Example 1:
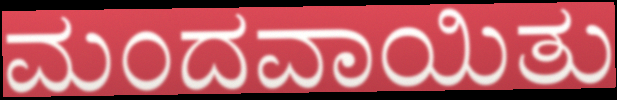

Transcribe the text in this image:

ಮಂದವಾಯಿತು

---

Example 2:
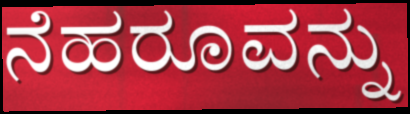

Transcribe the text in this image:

ನೆಹರೂವನ್ನು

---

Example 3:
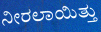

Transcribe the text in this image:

ನೀರಲಾಯಿತ್ತು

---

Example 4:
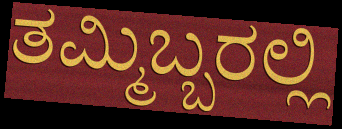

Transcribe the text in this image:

ತಮ್ಮಿಬ್ಬರಲ್ಲಿ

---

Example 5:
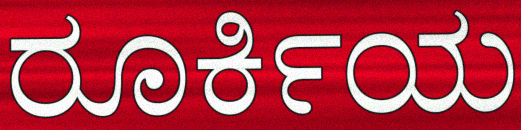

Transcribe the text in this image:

ರೂರ್ಕಿಯ